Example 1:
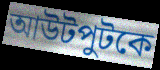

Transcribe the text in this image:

আউটপুটকে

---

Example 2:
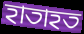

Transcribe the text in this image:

হাতাহত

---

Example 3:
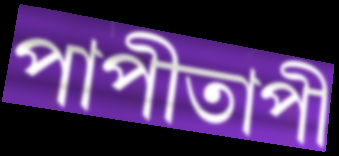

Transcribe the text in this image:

পাপীতাপী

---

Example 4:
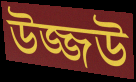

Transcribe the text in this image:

উজ্জউ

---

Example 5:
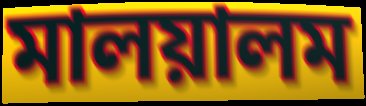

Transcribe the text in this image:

মালয়ালম